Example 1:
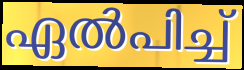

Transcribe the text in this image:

ഏൽപിച്ച്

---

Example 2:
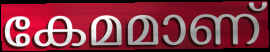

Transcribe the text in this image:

കേമമാണ്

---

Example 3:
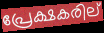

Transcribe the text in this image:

പ്രേക്ഷകരില്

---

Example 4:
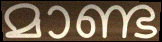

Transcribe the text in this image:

മാണ്ട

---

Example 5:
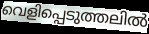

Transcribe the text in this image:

വെളിപ്പെടുത്തലിൽ